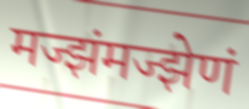
मज्झंमज्झेणं